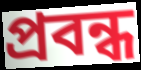
প্রবন্ধ